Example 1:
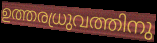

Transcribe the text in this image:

ഉത്തരധ്രുവത്തിനു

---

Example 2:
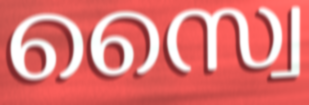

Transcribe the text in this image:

സ്വൈ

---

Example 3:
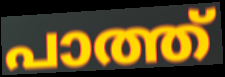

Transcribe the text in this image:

പാത്ത്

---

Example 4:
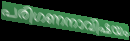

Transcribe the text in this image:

പരിഗണനാവിഷയം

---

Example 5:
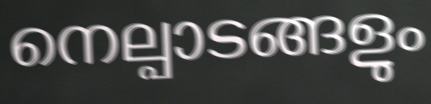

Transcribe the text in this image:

നെല്പാടങ്ങളും